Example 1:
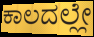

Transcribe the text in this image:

ಕಾಲದಲ್ಲೇ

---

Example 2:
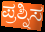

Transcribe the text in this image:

ಪ್ರಶ್ನಿಸ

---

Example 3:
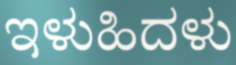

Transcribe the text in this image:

ಇಳುಹಿದಳು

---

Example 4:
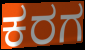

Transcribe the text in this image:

ಕರಗ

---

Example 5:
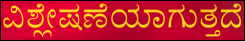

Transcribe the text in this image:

ವಿಶ್ಲೇಷಣೆಯಾಗುತ್ತದೆ